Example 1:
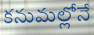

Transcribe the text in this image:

కనుమల్లోనే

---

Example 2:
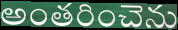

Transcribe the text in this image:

అంతరించెను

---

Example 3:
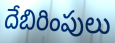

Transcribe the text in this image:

దేబిరింపులు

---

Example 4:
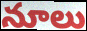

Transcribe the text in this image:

నూలు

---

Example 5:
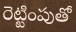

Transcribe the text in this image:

రెట్టింపుతో